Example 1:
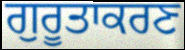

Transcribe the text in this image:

ਗੁਰੂਤਾਕਰਣ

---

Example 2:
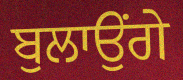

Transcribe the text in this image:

ਬੁਲਾਉਂਗੇ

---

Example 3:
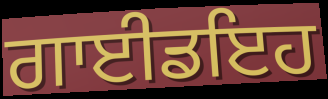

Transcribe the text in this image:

ਗਾਈਡਇਹ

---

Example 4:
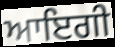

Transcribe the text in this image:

ਆਇਗੀ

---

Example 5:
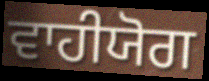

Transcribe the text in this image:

ਵਾਹੀਯੋਗ